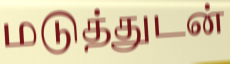
மடுத்துடன்